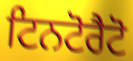
ਟਿਨਟੋਰੈਟੋ